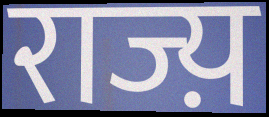
राज्य़